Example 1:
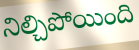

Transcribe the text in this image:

నిల్చిపోయింది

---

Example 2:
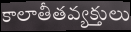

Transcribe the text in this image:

కాలాతీతవ్యక్తులు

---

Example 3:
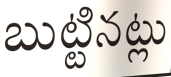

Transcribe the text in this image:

బుట్టినట్లు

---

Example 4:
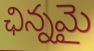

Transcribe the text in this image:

ఛిన్నమై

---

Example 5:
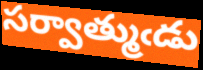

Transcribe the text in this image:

సర్వాత్ముఁడు